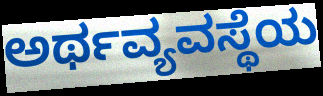
ಅರ್ಥವ್ಯವಸ್ಥೆಯ